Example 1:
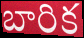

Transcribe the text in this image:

బారిక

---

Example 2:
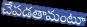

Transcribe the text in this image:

చేపడతామంటూ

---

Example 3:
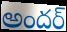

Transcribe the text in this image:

అందర్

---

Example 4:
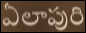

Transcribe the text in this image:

ఏలాపురి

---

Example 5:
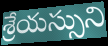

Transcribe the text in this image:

శ్రేయస్సుని